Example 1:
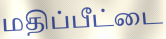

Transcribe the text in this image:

மதிப்பீட்டை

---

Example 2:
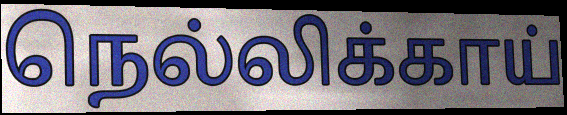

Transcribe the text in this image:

நெல்லிக்காய்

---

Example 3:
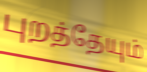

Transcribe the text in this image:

புறத்தேயும்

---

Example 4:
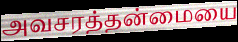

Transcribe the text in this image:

அவசரத்தன்மையை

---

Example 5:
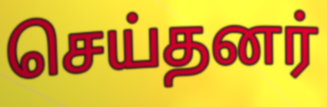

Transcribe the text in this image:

செய்தனர்